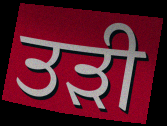
ਤੜੀ